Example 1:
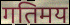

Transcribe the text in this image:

गतिमय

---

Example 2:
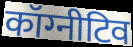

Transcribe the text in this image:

कॉग्‍नीटिव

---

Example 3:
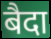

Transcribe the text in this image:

बैदा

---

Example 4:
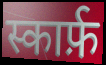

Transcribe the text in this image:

स्कार्फ़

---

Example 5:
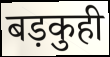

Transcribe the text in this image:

बड़कुही